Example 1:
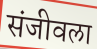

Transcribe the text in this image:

संजीवला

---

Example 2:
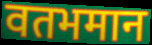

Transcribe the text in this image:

वतभमान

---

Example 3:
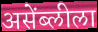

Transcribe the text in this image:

असेंब्लीला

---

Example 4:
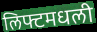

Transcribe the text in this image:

लिफ्टमधली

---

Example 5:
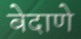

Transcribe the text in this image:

बेदाणे